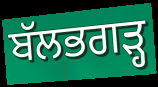
ਬੱਲਭਗੜ੍ਹ